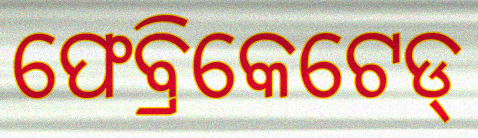
ଫେବ୍ରିକେଟେଡ୍